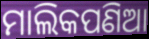
ମାଲିକପଣିଆ